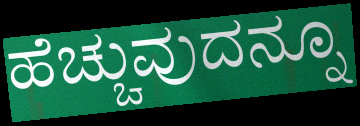
ಹೆಚ್ಚುವುದನ್ನೂ